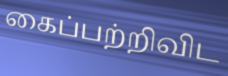
கைப்பற்றிவிட